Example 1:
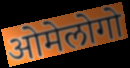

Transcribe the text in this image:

ओमेलोगो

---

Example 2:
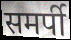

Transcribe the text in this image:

समर्पी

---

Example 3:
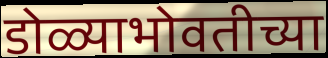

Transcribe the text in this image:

डोळ्याभोवतीच्या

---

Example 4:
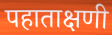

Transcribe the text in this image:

पहाताक्षणी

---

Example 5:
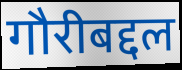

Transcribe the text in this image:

गौरीबद्दल